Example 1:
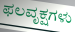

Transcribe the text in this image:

ಫಲವೃಕ್ಷಗಳು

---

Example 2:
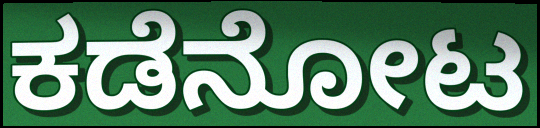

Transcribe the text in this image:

ಕಡೆನೋಟ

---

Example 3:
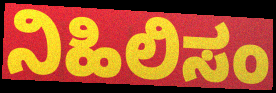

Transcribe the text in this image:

ನಿಹಿಲಿಸಂ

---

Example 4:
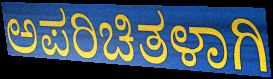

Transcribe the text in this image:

ಅಪರಿಚಿತಳಾಗಿ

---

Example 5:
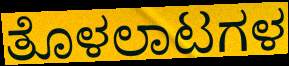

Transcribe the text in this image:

ತೊಳಲಾಟಗಳ